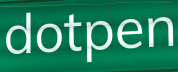
dotpen